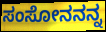
ಸಂಸೋನನನ್ನ